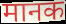
मानक